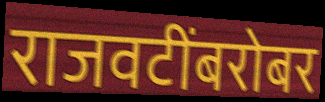
राजवटींबरोबर